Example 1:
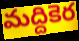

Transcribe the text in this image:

మద్దికెర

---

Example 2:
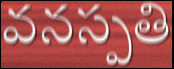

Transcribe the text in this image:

వనస్పతి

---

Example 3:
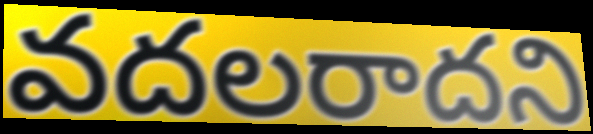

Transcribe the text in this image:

వదలరాదని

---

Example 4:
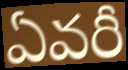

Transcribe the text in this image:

ఏవరీ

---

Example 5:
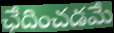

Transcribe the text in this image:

ఛేదించడమే